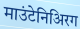
माउंटेनिअिरग